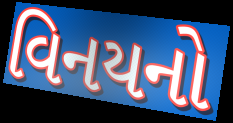
વિનયનો